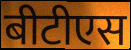
बीटीएस